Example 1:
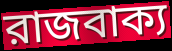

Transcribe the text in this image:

রাজবাক্য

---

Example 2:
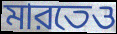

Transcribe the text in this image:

মারতেও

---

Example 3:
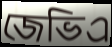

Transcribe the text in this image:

জেভিএ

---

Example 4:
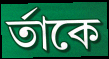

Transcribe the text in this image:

র্তাকে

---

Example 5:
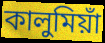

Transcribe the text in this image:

কালুমিয়াঁ